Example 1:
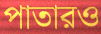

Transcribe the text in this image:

পাতারও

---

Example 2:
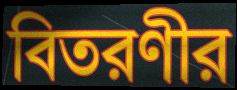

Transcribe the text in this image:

বিতরণীর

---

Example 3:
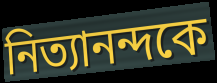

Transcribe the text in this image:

নিত্যানন্দকে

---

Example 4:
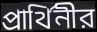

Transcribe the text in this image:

প্রার্থিনীর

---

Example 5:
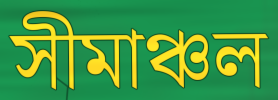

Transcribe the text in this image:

সীমাঞ্চল